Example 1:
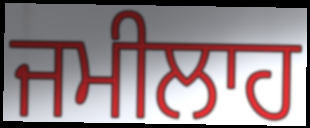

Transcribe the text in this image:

ਜਮੀਲਾਹ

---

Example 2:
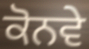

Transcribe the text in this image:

ਕੋਨਵੇ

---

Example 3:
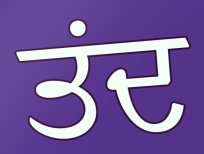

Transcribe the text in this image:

ਤਂਦ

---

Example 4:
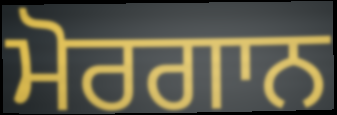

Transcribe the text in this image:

ਮੋਰਗਾਨ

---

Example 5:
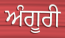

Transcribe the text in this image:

ਅੰਗੂਰੀ